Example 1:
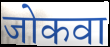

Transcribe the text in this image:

जोकवा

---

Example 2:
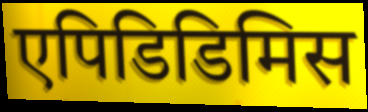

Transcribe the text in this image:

एपिडिडिमिस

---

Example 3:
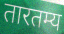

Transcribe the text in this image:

तारतम्य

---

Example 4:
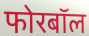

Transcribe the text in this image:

फोरबॉल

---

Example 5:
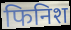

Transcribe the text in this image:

फिनिश